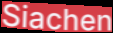
Siachen